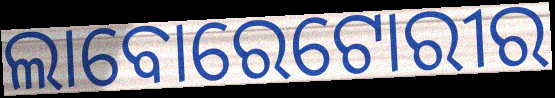
ଲାବୋରେଟୋରୀର